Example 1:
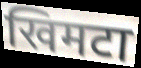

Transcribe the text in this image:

खिमटा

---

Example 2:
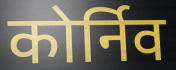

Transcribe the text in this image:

कोर्निव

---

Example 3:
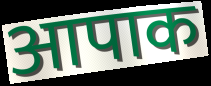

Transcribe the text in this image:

आपाक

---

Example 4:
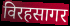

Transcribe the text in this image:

विरहसागर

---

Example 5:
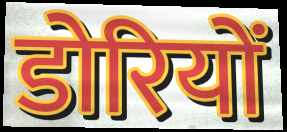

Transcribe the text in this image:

डोरियों